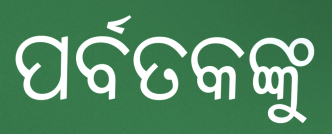
ପର୍ବତକଙ୍କୁ